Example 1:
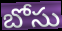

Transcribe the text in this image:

బోసు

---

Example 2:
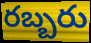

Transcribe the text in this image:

రబ్బరు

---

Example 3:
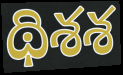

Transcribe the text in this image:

థిశశ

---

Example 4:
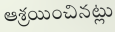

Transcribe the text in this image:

ఆశ్రయించినట్లు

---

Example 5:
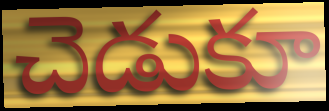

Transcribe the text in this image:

చెడుకూ